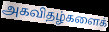
அகவிதழ்களைக்